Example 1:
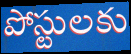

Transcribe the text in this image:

పోస్టులకు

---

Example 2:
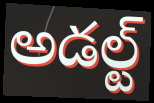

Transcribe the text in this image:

అడల్ట్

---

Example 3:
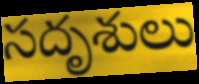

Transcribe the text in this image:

సదృశులు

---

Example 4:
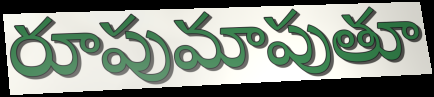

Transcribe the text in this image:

రూపుమాపుతూ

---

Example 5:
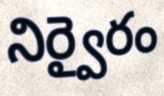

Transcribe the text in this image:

నిర్వైరం